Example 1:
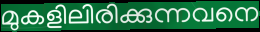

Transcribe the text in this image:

മുകളിലിരിക്കുന്നവനെ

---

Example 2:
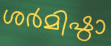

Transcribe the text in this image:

ശർമിഷ്ഠാ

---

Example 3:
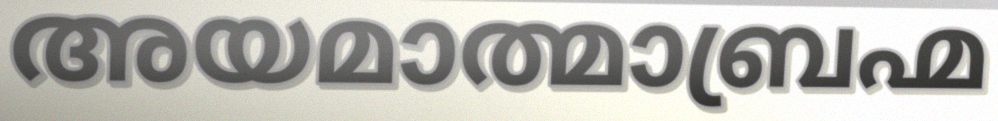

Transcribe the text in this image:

അയമാത്മാബ്രഹ്മ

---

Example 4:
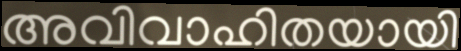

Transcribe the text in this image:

അവിവാഹിതയായി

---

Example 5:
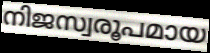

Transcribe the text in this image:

നിജസ്വരൂപമായ